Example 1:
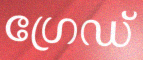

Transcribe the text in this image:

ഗ്രേഡ്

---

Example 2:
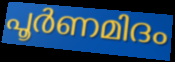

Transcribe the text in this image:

പൂർണമിദം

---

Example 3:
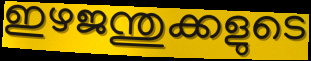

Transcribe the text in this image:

ഇഴജന്തുക്കളുടെ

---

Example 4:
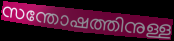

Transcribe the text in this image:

സന്തോഷത്തിനുള്ള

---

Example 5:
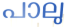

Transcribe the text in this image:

പാലു